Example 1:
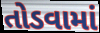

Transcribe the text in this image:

તોડવામાં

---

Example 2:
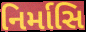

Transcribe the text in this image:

નિર્માસિ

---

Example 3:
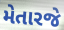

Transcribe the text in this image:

મેતારજે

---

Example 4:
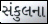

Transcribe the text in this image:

સંકુલના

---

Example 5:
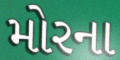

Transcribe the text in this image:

મોરના